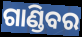
ଗାଣ୍ଡିବର